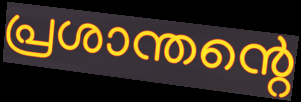
പ്രശാന്തന്റെ